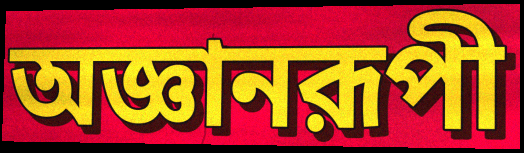
অজ্ঞানরূপী